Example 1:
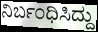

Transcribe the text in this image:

ನಿರ್ಬಂಧಿಸಿದ್ದು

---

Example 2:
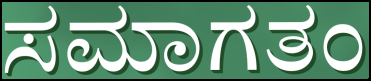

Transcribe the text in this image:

ಸಮಾಗತಂ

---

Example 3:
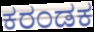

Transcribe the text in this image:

ಕರಂಡಕ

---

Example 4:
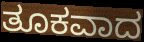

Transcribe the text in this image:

ತೂಕವಾದ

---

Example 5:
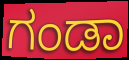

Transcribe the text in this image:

ಗಂಡಾ